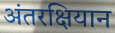
अंतरक्षियान